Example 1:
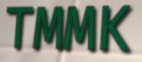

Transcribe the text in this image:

TMMK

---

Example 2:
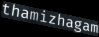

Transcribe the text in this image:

thamizhagam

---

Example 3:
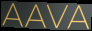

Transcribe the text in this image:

AAVA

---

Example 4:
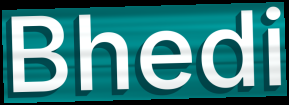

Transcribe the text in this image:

Bhedi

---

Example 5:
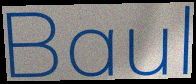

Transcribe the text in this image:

Baul